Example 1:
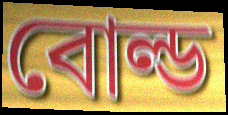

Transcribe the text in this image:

বোল্ড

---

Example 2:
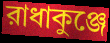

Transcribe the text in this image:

রাধাকুঞ্জে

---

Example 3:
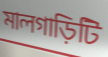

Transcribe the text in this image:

মালগাড়িটি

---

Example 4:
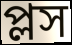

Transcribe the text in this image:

প্লস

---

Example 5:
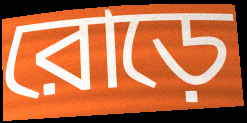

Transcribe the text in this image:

রোড়ে